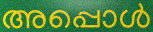
അപ്പൊൾ